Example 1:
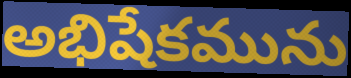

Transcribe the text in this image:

అభిషేకమును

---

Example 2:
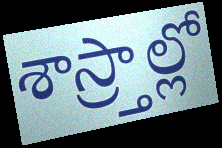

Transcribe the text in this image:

శాస్ర్తాల్లో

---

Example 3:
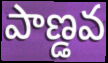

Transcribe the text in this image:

పాణ్డవ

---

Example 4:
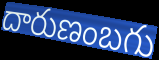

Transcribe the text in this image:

దారుణంబగు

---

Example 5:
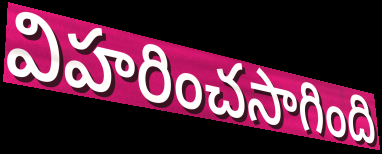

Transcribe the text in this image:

విహరించసాగింది